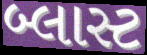
બ્લાસ્ટ